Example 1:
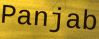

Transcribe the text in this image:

Panjab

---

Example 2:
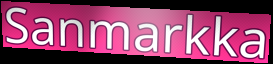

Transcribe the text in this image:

Sanmarkka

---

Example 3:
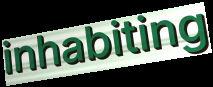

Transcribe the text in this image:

inhabiting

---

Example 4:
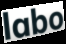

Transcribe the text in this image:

labo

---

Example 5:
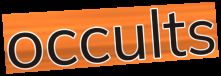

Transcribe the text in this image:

occults